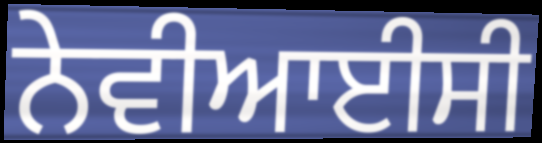
ਨੇਵੀਆਈਸੀ